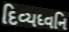
દિવ્યધ્વનિ